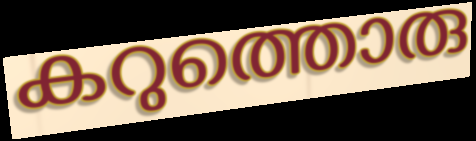
കറുത്തൊരു